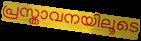
പ്രസ്താവനയിലൂടെ